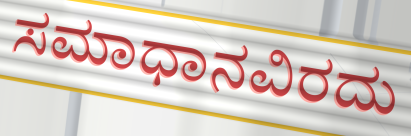
ಸಮಾಧಾನವಿರದು